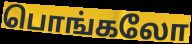
பொங்கலோ